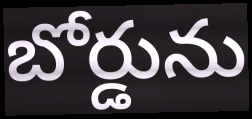
బోర్డును